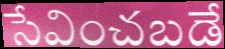
సేవించబడే